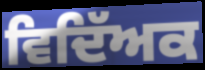
ਵਿਦਿੱਅਕ